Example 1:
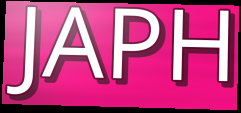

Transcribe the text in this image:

JAPH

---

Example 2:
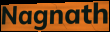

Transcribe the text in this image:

Nagnath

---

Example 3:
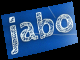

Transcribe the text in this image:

jabo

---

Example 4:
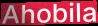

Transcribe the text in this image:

Ahobila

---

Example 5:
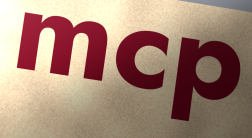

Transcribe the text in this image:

mcp